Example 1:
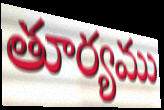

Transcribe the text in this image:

తూర్యము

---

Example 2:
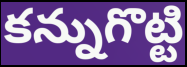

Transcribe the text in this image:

కన్నుగొట్టి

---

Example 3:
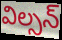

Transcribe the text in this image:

విల్సన్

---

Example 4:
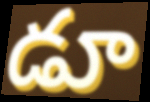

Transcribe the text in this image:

డూ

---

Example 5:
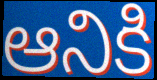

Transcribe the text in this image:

ఆనికి